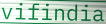
vifindia